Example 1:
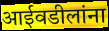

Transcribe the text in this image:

आईवडीलांना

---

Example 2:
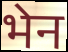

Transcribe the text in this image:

भेन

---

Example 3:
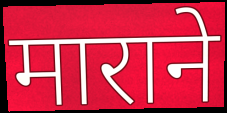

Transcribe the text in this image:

माराने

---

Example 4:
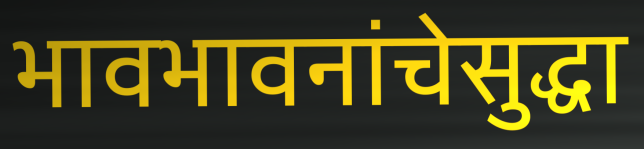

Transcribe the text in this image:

भावभावनांचेसुद्धा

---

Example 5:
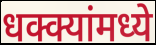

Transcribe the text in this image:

धक्क्यांमध्ये